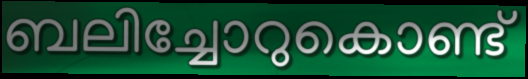
ബലിച്ചോറുകൊണ്ട്